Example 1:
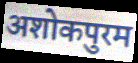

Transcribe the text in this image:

अशोकपुरम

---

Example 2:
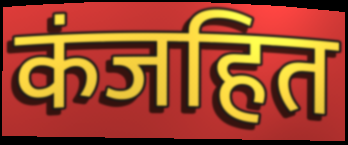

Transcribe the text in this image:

कंजहित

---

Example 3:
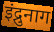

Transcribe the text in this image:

इंद्रुनाग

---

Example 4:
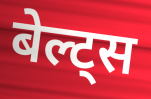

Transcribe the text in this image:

बेल्ट्स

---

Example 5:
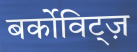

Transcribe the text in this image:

बर्कोविट्ज़